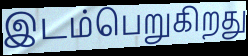
இடம்பெறுகிறது